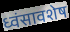
ध्वंसावशेष